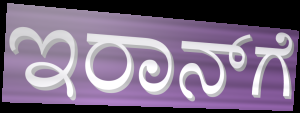
ಇರಾನ್‌ಗೆ